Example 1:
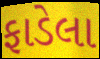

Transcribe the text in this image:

ફાડેલા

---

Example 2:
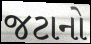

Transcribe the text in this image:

જટાનો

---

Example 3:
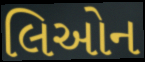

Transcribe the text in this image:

લિઓન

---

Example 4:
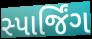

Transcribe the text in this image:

સ્પાર્જિંગ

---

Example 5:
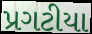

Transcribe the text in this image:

પ્રગટીયા